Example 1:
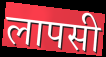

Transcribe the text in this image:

लापसी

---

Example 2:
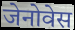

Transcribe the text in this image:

जेनोवेस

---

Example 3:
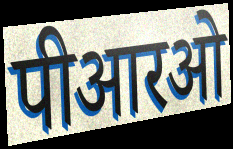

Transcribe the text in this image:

पीआरओ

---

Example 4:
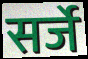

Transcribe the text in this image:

सर्जे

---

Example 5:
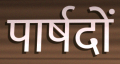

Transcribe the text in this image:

पार्षदों